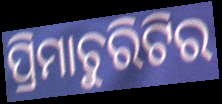
ପ୍ରିମାଚୁରିଟିର